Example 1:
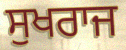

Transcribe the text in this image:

ਸੁਖਰਾਜ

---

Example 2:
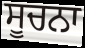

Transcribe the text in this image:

ਸੂਚਨਾ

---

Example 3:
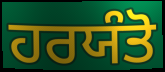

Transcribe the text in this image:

ਹਰਯੰਤੋ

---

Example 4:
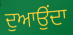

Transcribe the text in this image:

ਦੁਆਉਂਦਾ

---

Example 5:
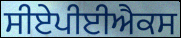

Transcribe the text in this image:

ਸੀਏਪੀਈਐਕਸ